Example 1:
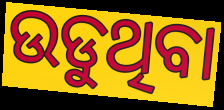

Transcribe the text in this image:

ଉଡୁଥିବା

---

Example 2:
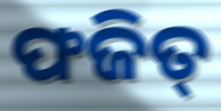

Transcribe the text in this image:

ଫଜିତ୍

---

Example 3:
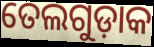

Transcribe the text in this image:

ତେଲଗୁଡ଼ାକ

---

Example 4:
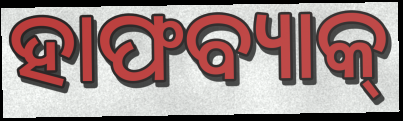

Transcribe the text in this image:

ହାଫବ୍ୟାକ୍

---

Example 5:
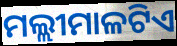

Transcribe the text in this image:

ମଲ୍ଲୀମାଳଟିଏ